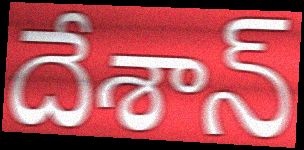
దేశాన్